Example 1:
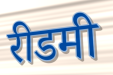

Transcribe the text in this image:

रीडमी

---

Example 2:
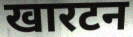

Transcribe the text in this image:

खारटन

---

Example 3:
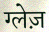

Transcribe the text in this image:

ग्लेज़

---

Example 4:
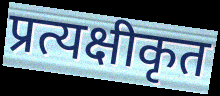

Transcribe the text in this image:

प्रत्यक्षीकृत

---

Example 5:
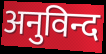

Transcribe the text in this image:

अनुविन्द